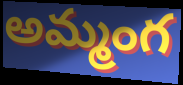
అమ్మంగ